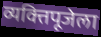
व्यक्तिपूजेला